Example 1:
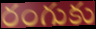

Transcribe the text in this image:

రంగుకు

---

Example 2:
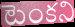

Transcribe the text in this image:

టెంకని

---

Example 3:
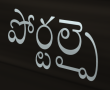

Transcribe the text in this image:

పోర్టల్పై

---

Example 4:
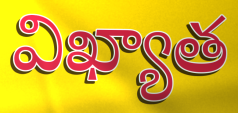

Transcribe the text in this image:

విఖ్యాత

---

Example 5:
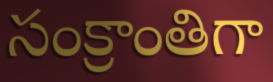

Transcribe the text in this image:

సంక్రాంతిగా